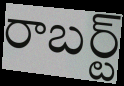
రాబర్ట్